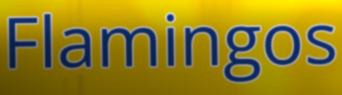
Flamingos